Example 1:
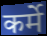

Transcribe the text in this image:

कर्मे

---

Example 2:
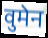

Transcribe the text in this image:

वुमेन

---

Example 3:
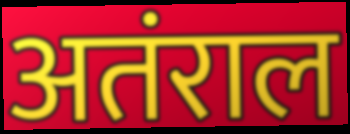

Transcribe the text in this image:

अतंराल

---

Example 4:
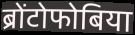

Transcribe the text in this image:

ब्रोंटोफोबिया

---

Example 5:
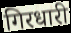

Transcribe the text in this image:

गिरधारी